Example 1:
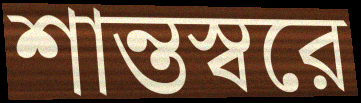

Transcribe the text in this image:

শান্তস্বরে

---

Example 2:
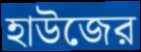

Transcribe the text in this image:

হাউজের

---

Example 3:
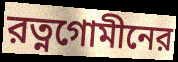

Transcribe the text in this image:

রত্নগোমীনের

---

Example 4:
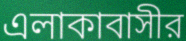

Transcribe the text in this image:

এলাকাবাসীর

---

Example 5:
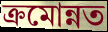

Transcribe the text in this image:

ক্রমোন্নত